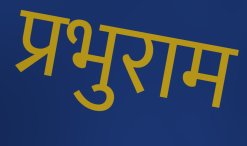
प्रभुराम